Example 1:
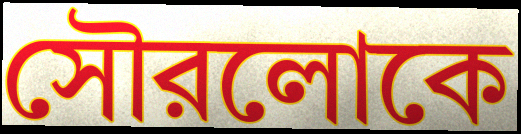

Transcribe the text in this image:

সৌরলোকে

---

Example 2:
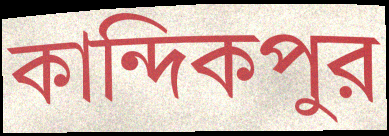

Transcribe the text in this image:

কান্দিকপুর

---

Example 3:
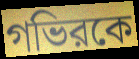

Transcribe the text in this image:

গভিরকে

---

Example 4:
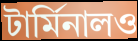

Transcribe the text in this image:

টার্মিনালও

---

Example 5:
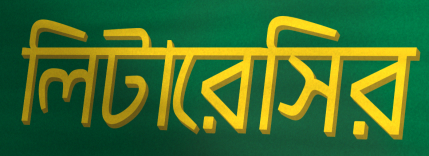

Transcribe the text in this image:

লিটারেসির